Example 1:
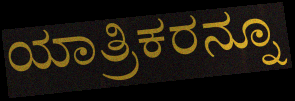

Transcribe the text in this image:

ಯಾತ್ರಿಕರನ್ನೂ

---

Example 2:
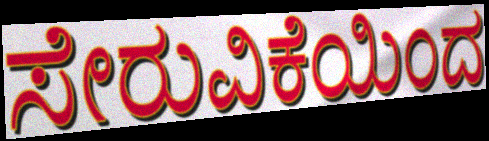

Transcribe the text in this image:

ಸೇರುವಿಕೆಯಿಂದ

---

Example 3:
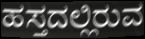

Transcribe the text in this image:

ಹಸ್ತದಲ್ಲಿರುವ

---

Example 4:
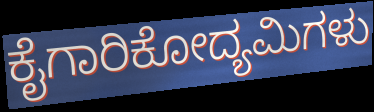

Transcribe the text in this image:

ಕೈಗಾರಿಕೋದ್ಯಮಿಗಳು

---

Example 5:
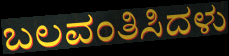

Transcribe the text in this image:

ಬಲವಂತಿಸಿದಳು